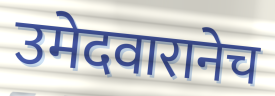
उमेदवारानेच